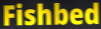
Fishbed